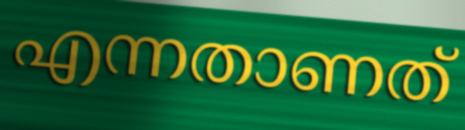
എന്നതാണത്